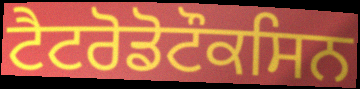
ਟੈਟਰੋਡੋਟੌਕਸਿਨ